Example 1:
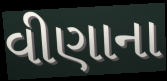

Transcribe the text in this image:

વીણાના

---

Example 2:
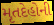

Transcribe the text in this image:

મૃતદેહોની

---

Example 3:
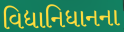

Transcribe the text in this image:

વિદ્યાનિધાનના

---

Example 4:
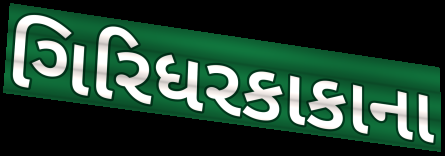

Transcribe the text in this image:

ગિરિધરકાકાના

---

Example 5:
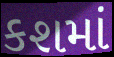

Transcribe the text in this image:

કશમાં